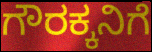
ಗೌರಕ್ಕನಿಗೆ